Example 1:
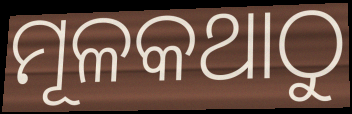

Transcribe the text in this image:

ମୂଳକଥାଠୁ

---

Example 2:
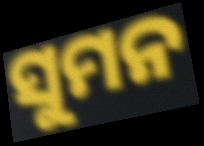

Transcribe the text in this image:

ସୁମନ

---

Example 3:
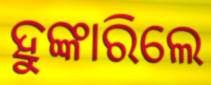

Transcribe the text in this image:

ହୁଙ୍କାରିଲେ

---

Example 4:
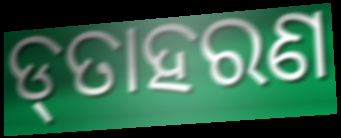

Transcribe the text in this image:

ଡ୍‌ତାହରଣ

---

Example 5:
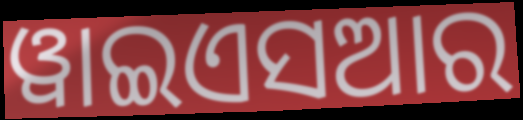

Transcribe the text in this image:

ୱାଇଏସଆର